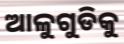
ଆଳୁଗୁଡିକୁ